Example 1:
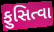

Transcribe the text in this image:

ફુસિત્વા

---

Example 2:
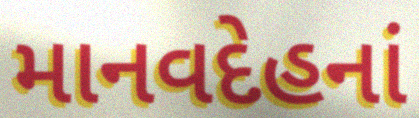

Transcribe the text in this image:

માનવદેહનાં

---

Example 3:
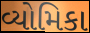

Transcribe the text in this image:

વ્યોમિકા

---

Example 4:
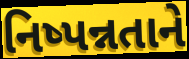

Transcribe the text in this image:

નિષ્પન્નતાને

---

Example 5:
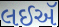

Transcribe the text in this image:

લઈઍ